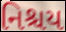
નિશ્ચય